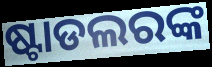
ଷ୍ଟାଡଲରଙ୍କ